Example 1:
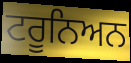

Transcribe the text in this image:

ਟਰੂਨਿਅਨ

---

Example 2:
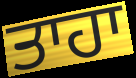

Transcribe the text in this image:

ਤਾਹਾ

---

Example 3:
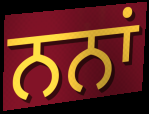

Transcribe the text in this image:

ਨਨਾਂ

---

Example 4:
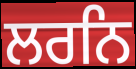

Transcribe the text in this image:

ਲਰਨਿ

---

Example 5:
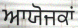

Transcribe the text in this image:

ਆਯੋਜਕਾਂ